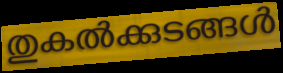
തുകൽക്കുടങ്ങൾ